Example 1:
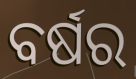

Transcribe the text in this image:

ବର୍ଷର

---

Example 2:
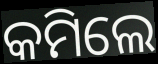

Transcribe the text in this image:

କମିଲେ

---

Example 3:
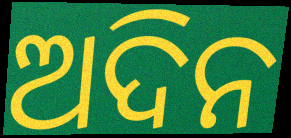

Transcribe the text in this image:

ଅଦିନ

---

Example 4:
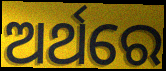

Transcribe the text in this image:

ଅର୍ଥରେ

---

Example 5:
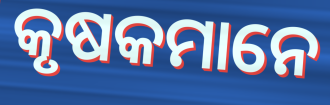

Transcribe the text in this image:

କୃଷକମାନେ